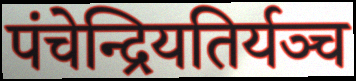
पंचेन्द्रियतिर्यञ्च